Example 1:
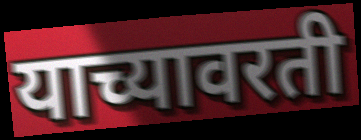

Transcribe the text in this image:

याच्यावरती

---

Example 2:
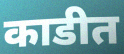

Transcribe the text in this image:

काडीत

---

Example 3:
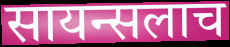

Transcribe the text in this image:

सायन्सलाच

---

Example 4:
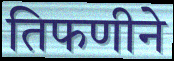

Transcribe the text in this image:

तिफणीने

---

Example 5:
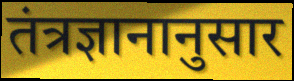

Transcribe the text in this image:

तंत्रज्ञानानुसार